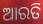
ଆରତି